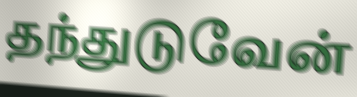
தந்துடுவேன்